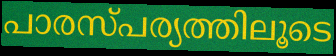
പാരസ്പര്യത്തിലൂടെ